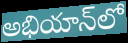
అభియాన్‌లో